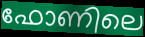
ഫോണിലെ